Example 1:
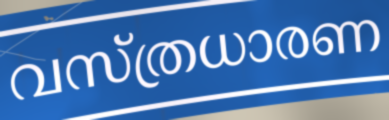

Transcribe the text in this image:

വസ്ത്രധാരണ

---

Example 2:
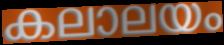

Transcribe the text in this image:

കലാലയം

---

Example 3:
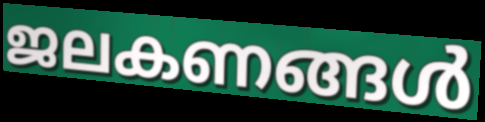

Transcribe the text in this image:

ജലകണങ്ങൾ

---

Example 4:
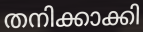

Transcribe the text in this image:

തനിക്കാക്കി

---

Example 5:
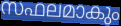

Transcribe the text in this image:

സഫലമാകും